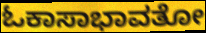
ಓಕಾಸಾಭಾವತೋ